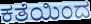
ಕತೆಯಿಂದ